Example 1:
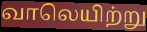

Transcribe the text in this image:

வாலெயிற்று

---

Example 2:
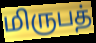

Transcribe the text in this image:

மிருபத்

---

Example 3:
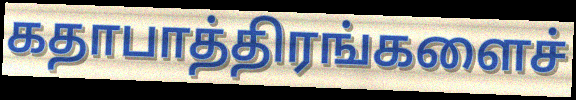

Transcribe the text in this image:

கதாபாத்திரங்களைச்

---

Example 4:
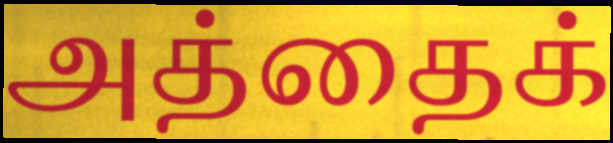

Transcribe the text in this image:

அத்தைக்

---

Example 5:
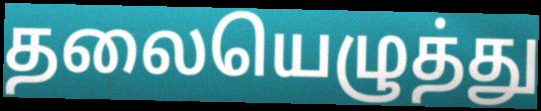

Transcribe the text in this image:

தலையெழுத்து